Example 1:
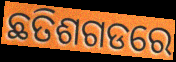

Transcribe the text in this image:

ଛତିଶଗଡରେ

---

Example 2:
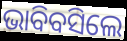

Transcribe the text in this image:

ଭାବିବସିଲେ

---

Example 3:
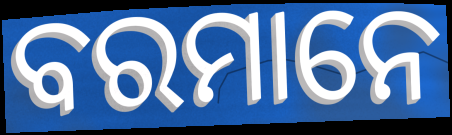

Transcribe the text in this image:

ବରମାନେ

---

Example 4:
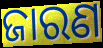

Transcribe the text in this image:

ଜାରଣ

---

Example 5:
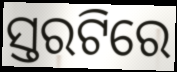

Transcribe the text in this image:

ସ୍ତରଟିରେ